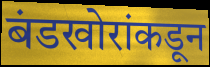
बंडखोरांकडून